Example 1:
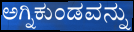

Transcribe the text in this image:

ಅಗ್ನಿಕುಂಡವನ್ನು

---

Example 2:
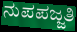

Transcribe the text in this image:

ನುಪಪಜ್ಜತಿ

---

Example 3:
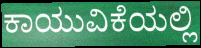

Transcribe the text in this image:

ಕಾಯುವಿಕೆಯಲ್ಲಿ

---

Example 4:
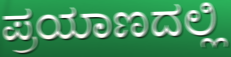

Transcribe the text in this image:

ಪ್ರಯಾಣದಲ್ಲಿ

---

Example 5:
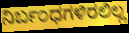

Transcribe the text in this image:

ನಿರ್ಬಂಧಗಳಿರಲಿಲ್ಲ